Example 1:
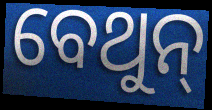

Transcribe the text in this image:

ବେଥୁନ୍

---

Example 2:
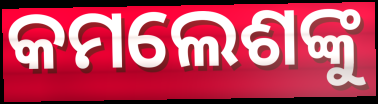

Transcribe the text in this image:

କମଲେଶଙ୍କୁ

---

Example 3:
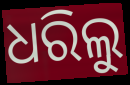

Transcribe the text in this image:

ଧରିଲୁ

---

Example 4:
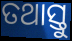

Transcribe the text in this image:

ତଥାସ୍ତୁ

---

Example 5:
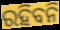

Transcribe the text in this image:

ରହିବନି